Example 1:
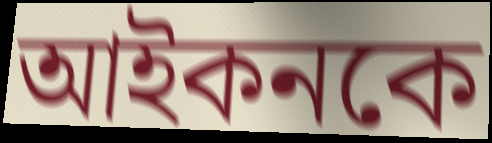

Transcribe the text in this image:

আইকনকে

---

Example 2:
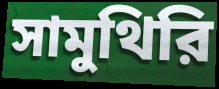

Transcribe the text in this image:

সামুথিরি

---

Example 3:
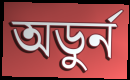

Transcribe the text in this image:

অডুর্ন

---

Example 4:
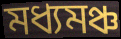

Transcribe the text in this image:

মধ্যমঞ্চ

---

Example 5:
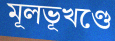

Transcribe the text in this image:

মূলভূখণ্ডে